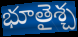
భూతైశ్చ